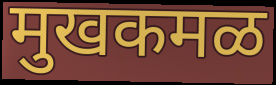
मुखकमळ